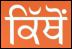
ਕਿੱਥੋੰ